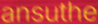
ansuthe